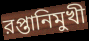
রপ্তানিমুখী